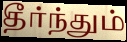
தீர்ந்தும்